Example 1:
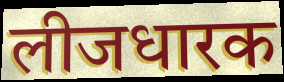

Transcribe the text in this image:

लीजधारक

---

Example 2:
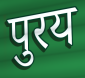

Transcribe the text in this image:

पुरय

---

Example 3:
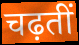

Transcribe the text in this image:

चढ़तीं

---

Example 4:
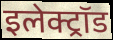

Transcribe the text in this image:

इलेक्ट्रॉड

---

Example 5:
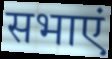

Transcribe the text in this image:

सभाएं